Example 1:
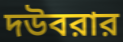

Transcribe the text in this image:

দউবরার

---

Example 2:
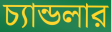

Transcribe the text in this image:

চ্যান্ডলার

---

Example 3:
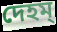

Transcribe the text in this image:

দেহম্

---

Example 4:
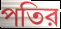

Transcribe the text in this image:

পতির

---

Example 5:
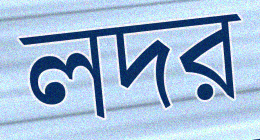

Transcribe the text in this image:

লদর